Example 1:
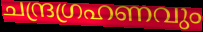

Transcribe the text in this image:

ചന്ദ്രഗ്രഹണവും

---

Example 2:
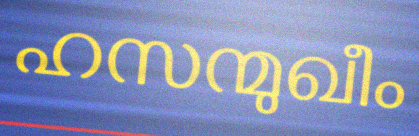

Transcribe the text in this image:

ഹസന്മുഖീം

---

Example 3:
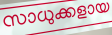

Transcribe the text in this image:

സാധുക്കളായ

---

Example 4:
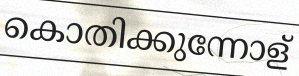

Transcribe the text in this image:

കൊതിക്കുന്നോള്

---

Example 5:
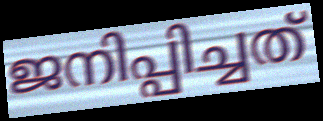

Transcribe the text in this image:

ജനിപ്പിച്ചത്